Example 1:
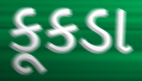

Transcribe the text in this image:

કૂકડા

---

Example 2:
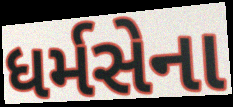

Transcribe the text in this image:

ધર્મસેના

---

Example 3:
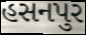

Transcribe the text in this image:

હસનપુર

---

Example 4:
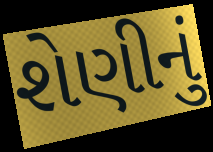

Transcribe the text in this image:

શેણીનું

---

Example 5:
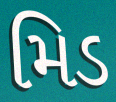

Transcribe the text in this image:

મિડ